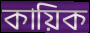
কায়িক